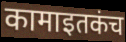
कामाइतकंच